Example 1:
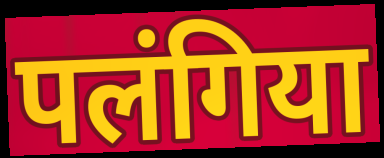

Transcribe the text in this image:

पलंगिया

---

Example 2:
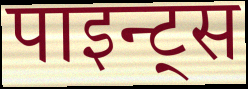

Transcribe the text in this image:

पाइन्ट्स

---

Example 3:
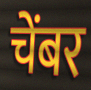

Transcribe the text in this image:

चेंबर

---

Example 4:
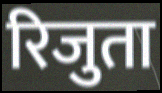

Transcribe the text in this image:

रिजुता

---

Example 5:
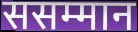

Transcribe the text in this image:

ससम्मान